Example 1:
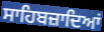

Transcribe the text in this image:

ਸਾਹਿਬਜ਼ਾਦਿਆਂ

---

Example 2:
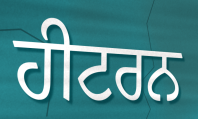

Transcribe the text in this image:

ਹੀਟਰਨ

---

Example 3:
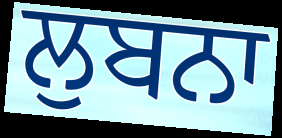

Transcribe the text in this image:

ਲੁਬਨਾ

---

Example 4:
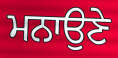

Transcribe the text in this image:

ਮਨਾਉਣੇ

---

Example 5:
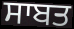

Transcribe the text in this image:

ਸਾਬਤ